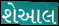
શેઆલ